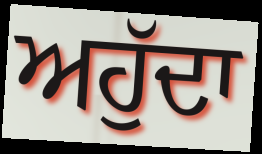
ਅਹੁੱਦਾ